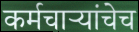
कर्मचाऱ्यांचेच